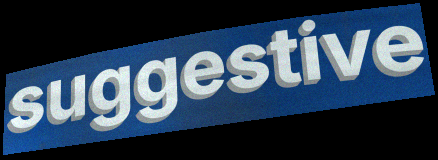
suggestive